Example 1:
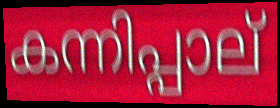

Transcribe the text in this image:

കന്നിപ്പാല്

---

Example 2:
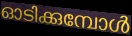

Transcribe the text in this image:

ഓടിക്കുമ്പോൾ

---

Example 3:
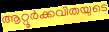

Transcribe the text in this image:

ആറ്റൂർക്കവിതയുടെ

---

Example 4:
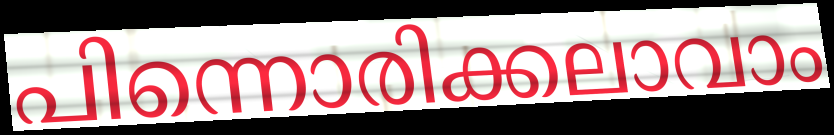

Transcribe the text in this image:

പിന്നൊരിക്കലാവാം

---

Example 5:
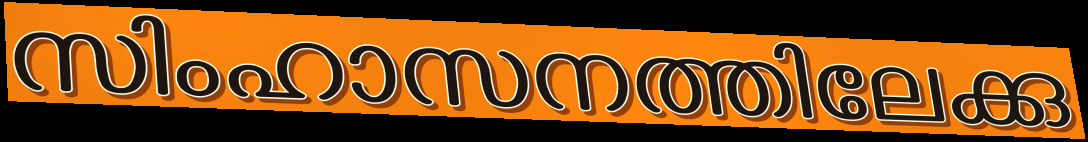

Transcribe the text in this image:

സിംഹാസനത്തിലേക്കു